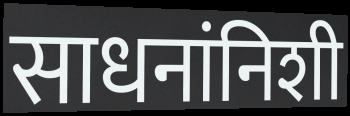
साधनांनिशी